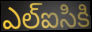
ఎల్ఐసికి